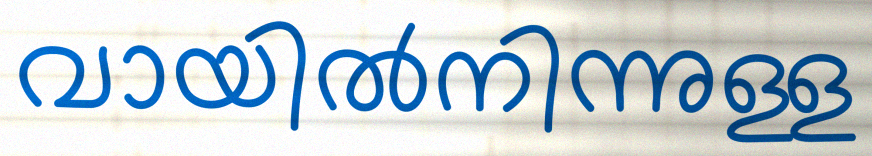
വായിൽനിന്നുള്ള